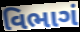
વિભાગં